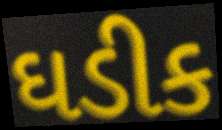
ઘડીક